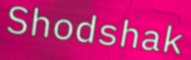
Shodshak